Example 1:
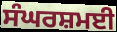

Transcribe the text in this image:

ਸੰਘਰਸ਼ਮਈ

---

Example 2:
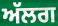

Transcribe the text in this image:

ਅੱਲਗ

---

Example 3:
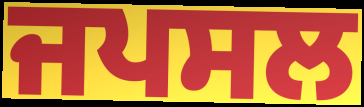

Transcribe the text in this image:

ਜਪਸਲ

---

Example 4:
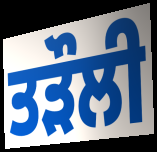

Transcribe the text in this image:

ਤੜੌਲੀ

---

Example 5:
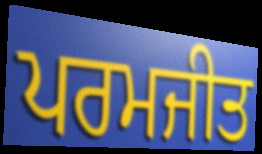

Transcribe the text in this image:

ਪਰਮਜੀਤ